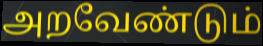
அறவேண்டும்